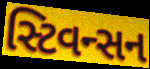
સ્ટિવન્સન